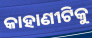
କାହାଣୀଟିକୁ